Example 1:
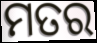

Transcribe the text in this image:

ମତର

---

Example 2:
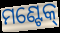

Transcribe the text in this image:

ମଣ୍ଟେକ୍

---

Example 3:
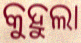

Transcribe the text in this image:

କୁହୁଲା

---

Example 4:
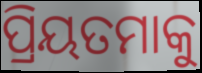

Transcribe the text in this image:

ପ୍ରିୟତମାକୁ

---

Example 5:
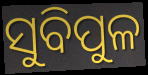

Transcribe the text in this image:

ସୁବିପୁଳ